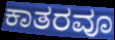
ಕಾತರವೂ